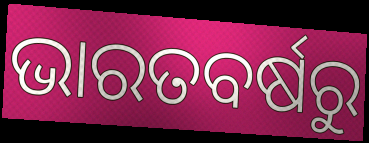
ଭାରତବର୍ଷରୁ